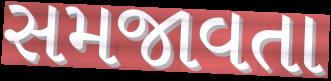
સમજાવતા